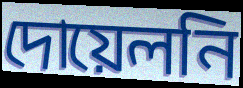
দোয়েলনি